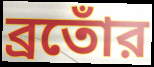
ব্রতোঁর